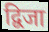
द्विजा